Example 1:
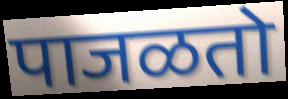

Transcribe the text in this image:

पाजळतो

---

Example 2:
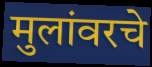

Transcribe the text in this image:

मुलांवरचे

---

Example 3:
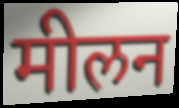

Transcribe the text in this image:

मीलन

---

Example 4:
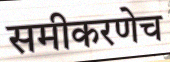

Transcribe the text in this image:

समीकरणेच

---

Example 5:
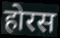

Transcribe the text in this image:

होरस